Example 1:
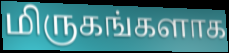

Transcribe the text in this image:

மிருகங்களாக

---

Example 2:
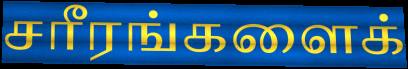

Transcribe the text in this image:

சரீரங்களைக்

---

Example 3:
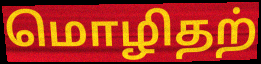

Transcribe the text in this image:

மொழிதற்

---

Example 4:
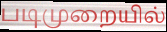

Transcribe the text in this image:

படிமுறையில்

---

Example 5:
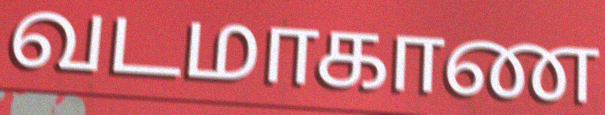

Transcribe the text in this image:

வடமாகாண